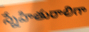
స్నేహితురాలిగా